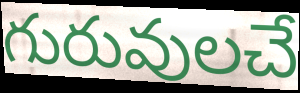
గురువులచే